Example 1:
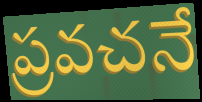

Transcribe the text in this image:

ప్రవచనే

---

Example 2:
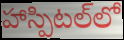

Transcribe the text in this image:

హాస్పిటల్‌లో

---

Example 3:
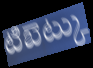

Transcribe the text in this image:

టిబెట్కు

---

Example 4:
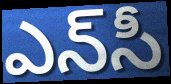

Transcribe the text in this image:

ఎన్‌సీ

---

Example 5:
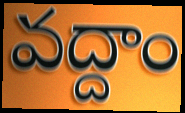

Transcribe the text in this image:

వద్దాం